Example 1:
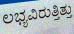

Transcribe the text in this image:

ಲಭ್ಯವಿರುತ್ತಿತ್ತು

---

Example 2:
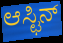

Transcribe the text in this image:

ಆಸ್ಟಿನ್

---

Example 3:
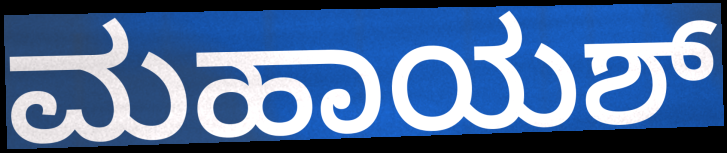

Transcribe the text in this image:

ಮಹಾಯಶ್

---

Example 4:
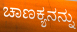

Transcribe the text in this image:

ಚಾಣಕ್ಯನನ್ನು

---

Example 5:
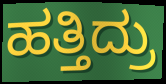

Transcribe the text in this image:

ಹತ್ತಿದ್ರು